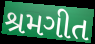
શ્રમગીત